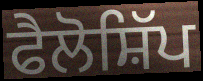
ਫੈਲੋਸ਼ਿੱਪ